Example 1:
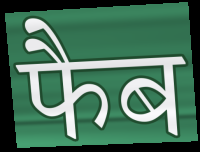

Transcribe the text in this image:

फैब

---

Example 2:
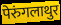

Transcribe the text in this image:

पेरुंगलाथुर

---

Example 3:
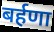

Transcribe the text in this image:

बर्हणा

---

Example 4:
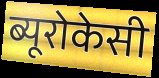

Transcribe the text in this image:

ब्यूरोकेसी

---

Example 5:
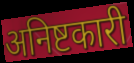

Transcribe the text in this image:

अनिष्टकारी